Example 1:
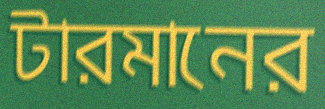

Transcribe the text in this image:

টারমানের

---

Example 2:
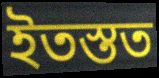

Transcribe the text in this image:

ইতস্তত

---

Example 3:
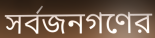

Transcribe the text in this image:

সর্বজনগণের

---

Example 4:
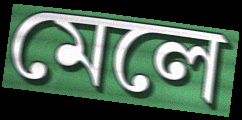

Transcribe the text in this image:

মেলে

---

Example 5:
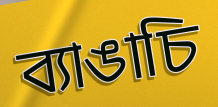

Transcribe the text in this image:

ব্যাঙাচি